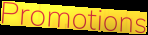
Promotions